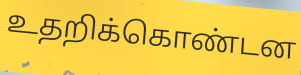
உதறிக்கொண்டன